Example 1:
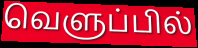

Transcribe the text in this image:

வெளுப்பில்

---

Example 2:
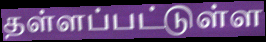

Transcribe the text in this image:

தள்ளப்பட்டுள்ள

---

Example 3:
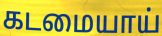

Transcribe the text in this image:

கடமையாய்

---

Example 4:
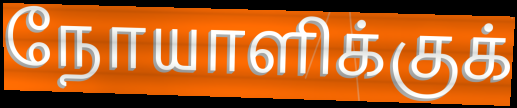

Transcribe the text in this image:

நோயாளிக்குக்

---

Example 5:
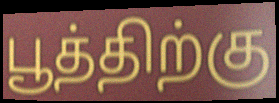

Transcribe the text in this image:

பூத்திற்கு